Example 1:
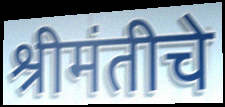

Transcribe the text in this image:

श्रीमंतीचे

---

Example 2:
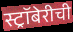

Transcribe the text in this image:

स्ट्रॉबेरीची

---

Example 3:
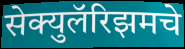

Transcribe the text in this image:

सेक्युलॅरिझमचे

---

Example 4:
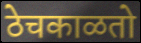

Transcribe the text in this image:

ठेचकाळतो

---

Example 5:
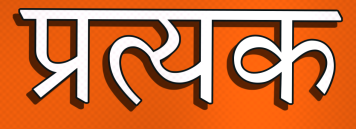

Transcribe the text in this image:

प्रत्यक